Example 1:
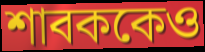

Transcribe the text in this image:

শাবককেও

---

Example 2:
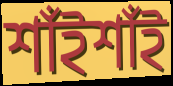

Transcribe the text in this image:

শাঁইশাঁই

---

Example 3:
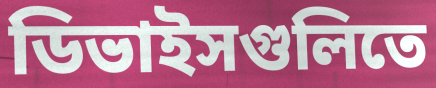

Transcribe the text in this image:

ডিভাইসগুলিতে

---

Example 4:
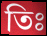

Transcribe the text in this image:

তিঃ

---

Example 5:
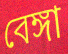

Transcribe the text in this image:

বেঙ্গা